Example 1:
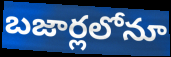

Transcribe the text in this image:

బజార్లలోనూ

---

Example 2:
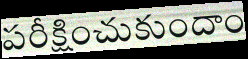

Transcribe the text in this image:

పరీక్షించుకుందాం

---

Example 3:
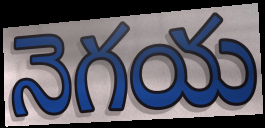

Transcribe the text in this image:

నెగయ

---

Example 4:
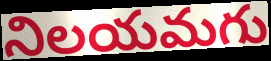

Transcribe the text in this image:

నిలయమగు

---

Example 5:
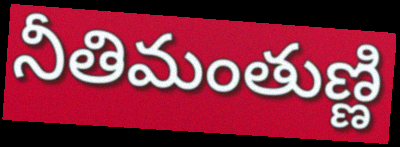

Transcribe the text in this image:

నీతిమంతుణ్ణి